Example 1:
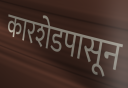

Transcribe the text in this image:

कारशेडपासून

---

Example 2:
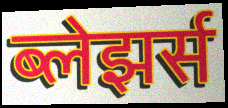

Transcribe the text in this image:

ब्लेझर्स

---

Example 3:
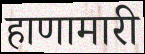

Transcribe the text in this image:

हाणामारी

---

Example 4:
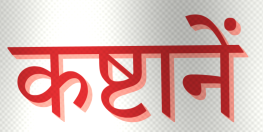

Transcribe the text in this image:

कष्टानें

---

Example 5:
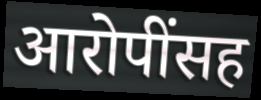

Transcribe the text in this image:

आरोपींसह